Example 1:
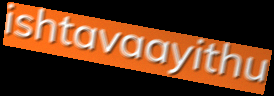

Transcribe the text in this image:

ishtavaayithu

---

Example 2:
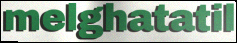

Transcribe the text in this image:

melghatatil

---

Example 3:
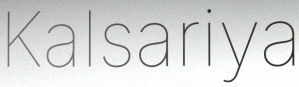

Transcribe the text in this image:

Kalsariya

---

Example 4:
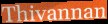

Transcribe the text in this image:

Thivannan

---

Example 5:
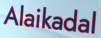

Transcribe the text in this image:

Alaikadal